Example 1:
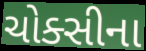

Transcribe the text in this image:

ચોક્સીના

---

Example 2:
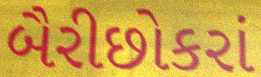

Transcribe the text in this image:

બૈરીછોકરાં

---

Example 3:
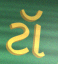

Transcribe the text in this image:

ટૉ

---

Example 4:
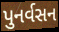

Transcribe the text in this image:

પુનર્વસન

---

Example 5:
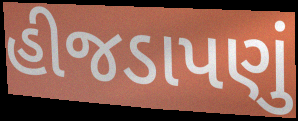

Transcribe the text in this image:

હીજડાપણું